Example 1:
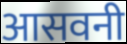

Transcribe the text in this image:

आसवनी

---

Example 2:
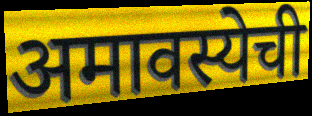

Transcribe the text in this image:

अमावस्येची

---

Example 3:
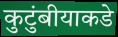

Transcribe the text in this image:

कुटुंबीयाकडे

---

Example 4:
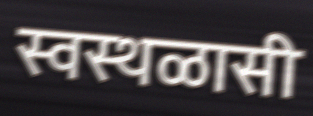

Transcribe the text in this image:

स्वस्थळासी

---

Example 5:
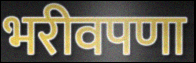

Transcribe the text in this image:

भरीवपणा